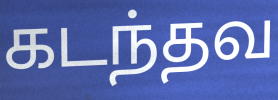
கடந்தவ